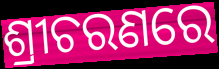
ଶ୍ରୀଚରଣରେ